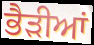
ਭੈੜੀਆਂ